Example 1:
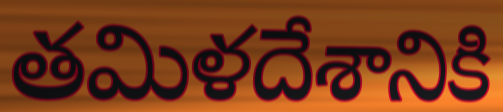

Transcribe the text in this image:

తమిళదేశానికి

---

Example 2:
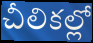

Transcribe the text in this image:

చీలికల్లో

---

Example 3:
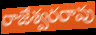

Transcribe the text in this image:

రాజేశ్వరరావు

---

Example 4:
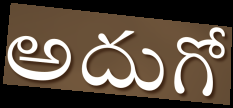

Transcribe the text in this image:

అదుగో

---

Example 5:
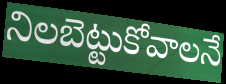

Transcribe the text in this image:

నిలబెట్టుకోవాలనే